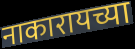
नाकारायच्या